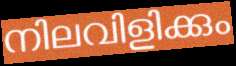
നിലവിളിക്കും